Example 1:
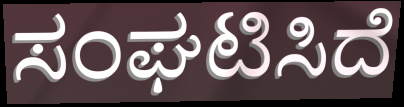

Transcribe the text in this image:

ಸಂಘಟಿಸಿದೆ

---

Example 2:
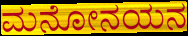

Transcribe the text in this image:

ಮನೋನಯನ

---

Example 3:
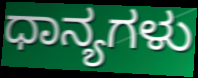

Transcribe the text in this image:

ಧಾನ್ಯಗಳು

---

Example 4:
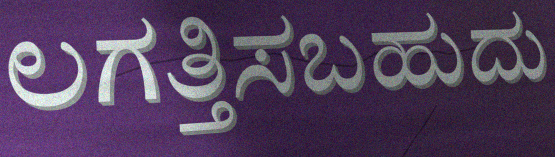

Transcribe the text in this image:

ಲಗತ್ತಿಸಬಹುದು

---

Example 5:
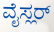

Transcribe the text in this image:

ವೈಸ್ಲರ್